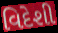
વિદેશી